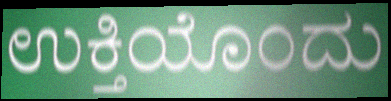
ಉಕ್ತಿಯೊಂದು